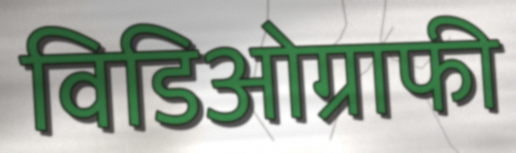
विडिओग्राफी